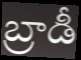
బ్రాడీ